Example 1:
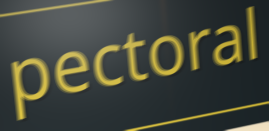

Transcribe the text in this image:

pectoral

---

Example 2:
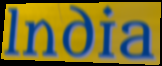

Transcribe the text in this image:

lndia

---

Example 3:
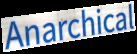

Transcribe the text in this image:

Anarchical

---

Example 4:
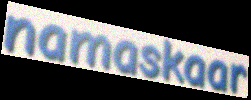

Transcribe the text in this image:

namaskaar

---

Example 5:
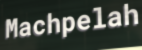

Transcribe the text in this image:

Machpelah